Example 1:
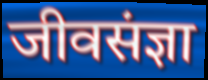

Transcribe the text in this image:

जीवसंज्ञा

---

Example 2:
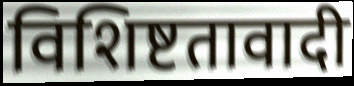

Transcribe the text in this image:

विशिष्टतावादी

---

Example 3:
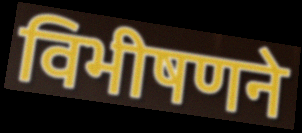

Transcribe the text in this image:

विभीषणने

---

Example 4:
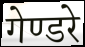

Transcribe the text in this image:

गेण्डरे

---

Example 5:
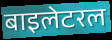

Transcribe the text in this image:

बाइलेटरल